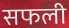
सफली